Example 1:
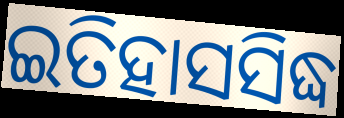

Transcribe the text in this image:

ଇତିହାସସିଦ୍ଧ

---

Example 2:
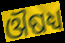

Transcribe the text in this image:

ଔଷଧ୍ୟ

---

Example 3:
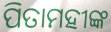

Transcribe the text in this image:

ପିତାମହୀଙ୍କ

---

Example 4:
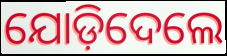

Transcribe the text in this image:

ଯୋଡ଼ିଦେଲେ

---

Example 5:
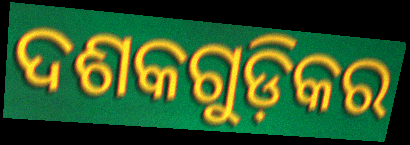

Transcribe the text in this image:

ଦଶକଗୁଡ଼ିକର